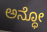
ಅನ್ಧೋ